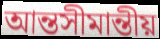
আন্তসীমান্তীয়